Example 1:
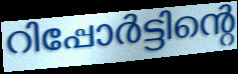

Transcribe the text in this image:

റിപ്പോർട്ടിന്റെ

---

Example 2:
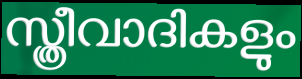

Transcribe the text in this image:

സ്ത്രീവാദികളും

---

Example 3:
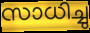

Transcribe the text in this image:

സാധിച്ചു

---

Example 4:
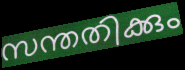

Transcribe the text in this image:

സന്തതിക്കും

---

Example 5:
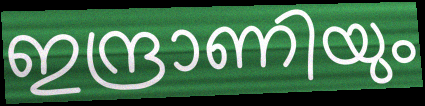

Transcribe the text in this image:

ഇന്ദ്രാണിയും